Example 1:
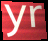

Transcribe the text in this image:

yr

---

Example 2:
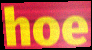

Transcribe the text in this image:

hoe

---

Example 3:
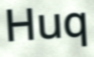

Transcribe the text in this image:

Huq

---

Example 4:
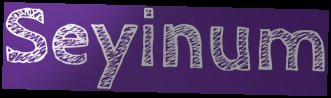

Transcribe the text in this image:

Seyinum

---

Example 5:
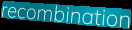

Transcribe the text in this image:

recombination